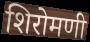
शिरोमणी